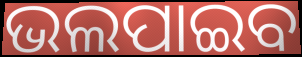
ଭଲପାଇବ